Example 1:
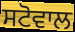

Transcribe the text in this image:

ਸਟੋਵਾਲ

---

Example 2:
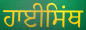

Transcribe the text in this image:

ਹਾਈਸਿਂਥ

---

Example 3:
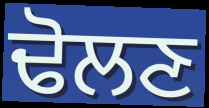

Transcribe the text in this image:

ਢੋਲਣ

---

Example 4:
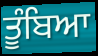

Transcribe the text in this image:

ਤੂੰਬਿਆ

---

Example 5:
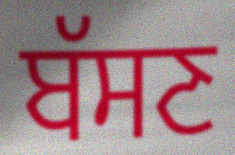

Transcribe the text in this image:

ਬੱਸਣ